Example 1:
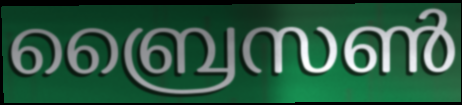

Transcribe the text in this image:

ബ്രൈസൺ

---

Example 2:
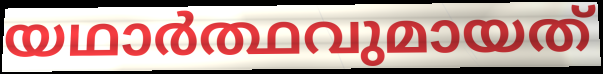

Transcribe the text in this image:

യഥാർത്ഥവുമായത്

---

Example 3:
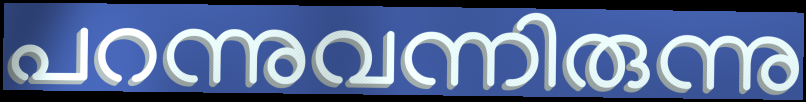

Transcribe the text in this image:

പറന്നുവന്നിരുന്നു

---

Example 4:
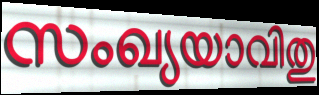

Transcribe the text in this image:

സംഖ്യയാവിതു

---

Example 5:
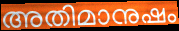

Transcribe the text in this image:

അതിമാനുഷം